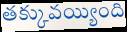
తక్కువయ్యింది